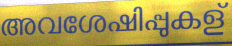
അവശേഷിപ്പുകള്